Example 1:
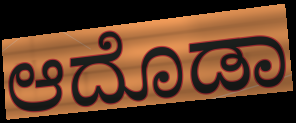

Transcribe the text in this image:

ಆದೊಡಾ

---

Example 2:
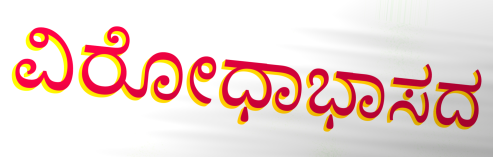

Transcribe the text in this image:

ವಿರೋಧಾಭಾಸದ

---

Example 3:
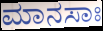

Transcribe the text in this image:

ಮಾನಸಾಃ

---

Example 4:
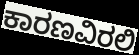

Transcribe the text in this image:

ಕಾರಣವಿರಲಿ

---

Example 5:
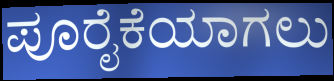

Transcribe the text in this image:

ಪೂರೈಕೆಯಾಗಲು